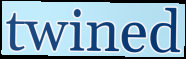
twined